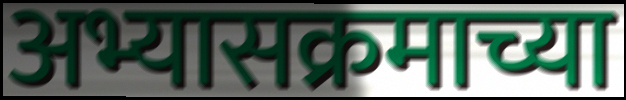
अभ्यासक्रमाच्या